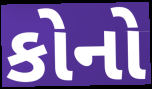
કોનો